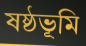
ষষ্ঠভূমি